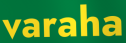
varaha